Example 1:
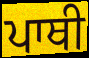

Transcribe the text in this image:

ਪਾਥੀ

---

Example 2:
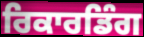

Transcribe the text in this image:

ਰਿਕਾਰਡਿੰਗ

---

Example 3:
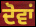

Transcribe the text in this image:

ਦੋਵਾਂ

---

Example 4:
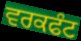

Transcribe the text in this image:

ਵਰਕਫੰਟ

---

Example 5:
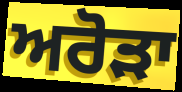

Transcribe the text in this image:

ਅਰੋੜਾ